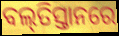
ବଲ୍‌ତିସ୍ତାନରେ